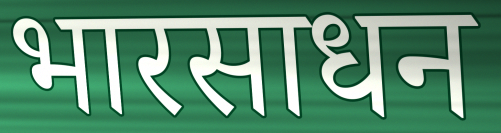
भारसाधन